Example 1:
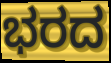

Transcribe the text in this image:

ಭರದ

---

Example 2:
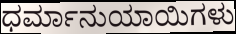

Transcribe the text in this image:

ಧರ್ಮಾನುಯಾಯಿಗಳು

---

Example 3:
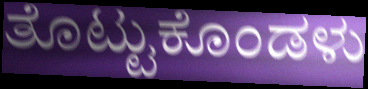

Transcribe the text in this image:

ತೊಟ್ಟುಕೊಂಡಳು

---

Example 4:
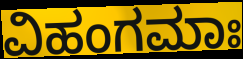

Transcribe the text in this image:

ವಿಹಂಗಮಾಃ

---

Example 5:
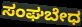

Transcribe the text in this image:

ಸಂಘಬೇಧ